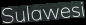
Sulawesi